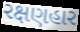
રક્ષણહાર